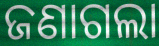
ଜଣାଗଲା